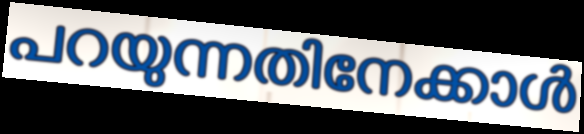
പറയുന്നതിനേക്കാൾ